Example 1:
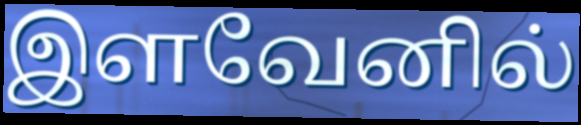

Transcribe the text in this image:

இளவேனில்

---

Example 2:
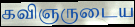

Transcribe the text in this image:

கவிஞருடைய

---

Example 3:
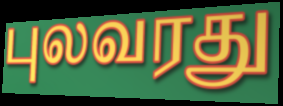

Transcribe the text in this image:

புலவரது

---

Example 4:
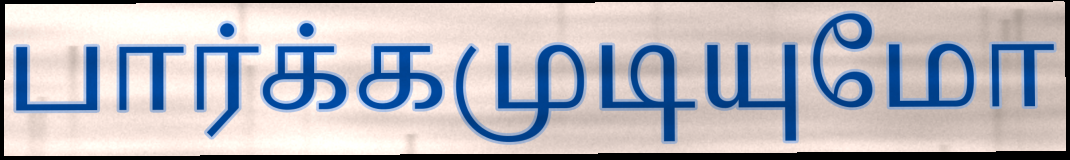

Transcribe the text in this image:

பார்க்கமுடியுமோ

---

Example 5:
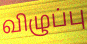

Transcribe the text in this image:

விழுப்பு